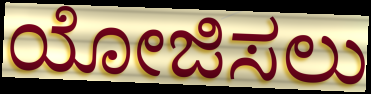
ಯೋಜಿಸಲು